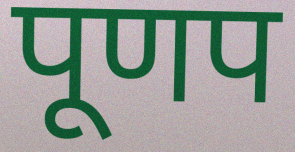
पूणप